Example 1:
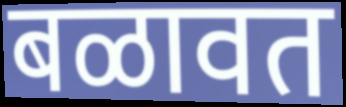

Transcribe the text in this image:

बळावत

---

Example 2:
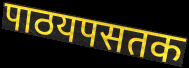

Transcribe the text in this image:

पाठयपसतक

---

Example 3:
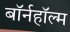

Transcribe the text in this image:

बॉर्नहॉल्म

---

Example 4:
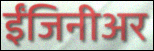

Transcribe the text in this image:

ईंजिनीअर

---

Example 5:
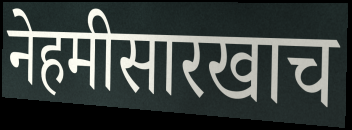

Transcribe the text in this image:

नेहमीसारखाच